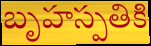
బృహస్పతికి